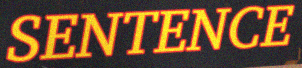
SENTENCE